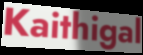
Kaithigal